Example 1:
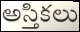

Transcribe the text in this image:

అస్తికలు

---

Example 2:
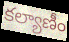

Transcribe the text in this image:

కల్యాణీం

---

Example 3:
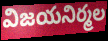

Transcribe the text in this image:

విజయనిర్మల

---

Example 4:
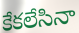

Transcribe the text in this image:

కేకలేసినా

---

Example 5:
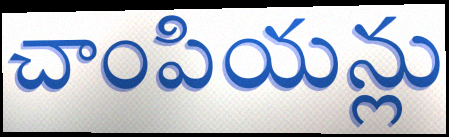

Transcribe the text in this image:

చాంపియన్లు